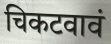
चिकटवावं